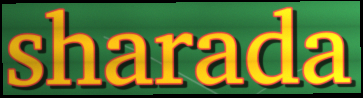
sharada